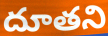
దూతని